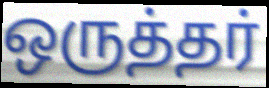
ஒருத்தர்